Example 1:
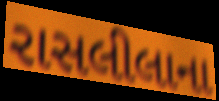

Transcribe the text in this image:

રાસલીલાના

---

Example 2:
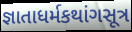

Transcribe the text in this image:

જ્ઞાતાધર્મકથાંગસૂત્ર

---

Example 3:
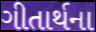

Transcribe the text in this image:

ગીતાર્થના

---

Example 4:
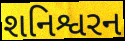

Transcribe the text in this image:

શનિશ્વરન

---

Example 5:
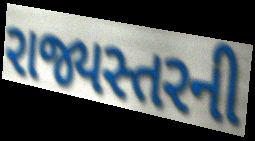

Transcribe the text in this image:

રાજ્યસ્તરની